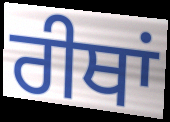
ਰੀਥਾਂ